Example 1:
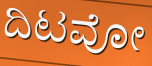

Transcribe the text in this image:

ದಿಟವೋ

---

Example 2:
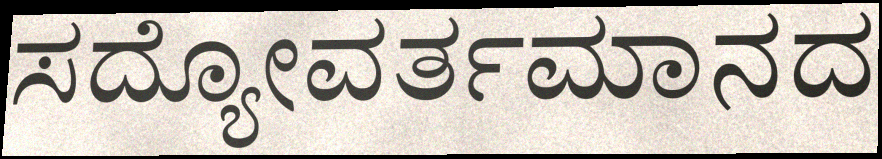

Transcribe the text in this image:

ಸದ್ಯೋವರ್ತಮಾನದ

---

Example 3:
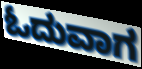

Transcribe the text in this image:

ಓದುವಾಗ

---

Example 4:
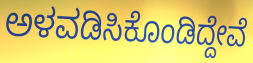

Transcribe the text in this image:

ಅಳವಡಿಸಿಕೊಂಡಿದ್ದೇವೆ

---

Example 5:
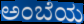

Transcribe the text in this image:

ಅಂಬೆಯ